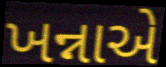
ખન્નાએ